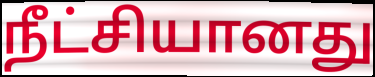
நீட்சியானது